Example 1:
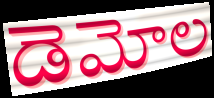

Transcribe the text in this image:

డెమోల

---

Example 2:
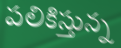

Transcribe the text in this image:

పలికిస్తున్న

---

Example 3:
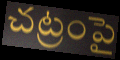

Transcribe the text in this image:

చట్రంపై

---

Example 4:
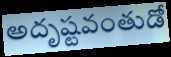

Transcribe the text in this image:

అదృష్టవంతుడో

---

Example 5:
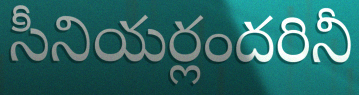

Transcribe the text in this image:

సీనియర్లందరినీ